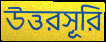
উত্তরসূরি